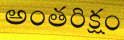
అంతరిక్షం